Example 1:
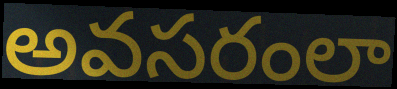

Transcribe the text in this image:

అవసరంలా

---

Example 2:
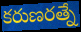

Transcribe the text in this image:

కరుణరత్నే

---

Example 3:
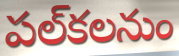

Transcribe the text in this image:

పల్‌కలనుం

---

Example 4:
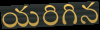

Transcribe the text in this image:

యరిగిన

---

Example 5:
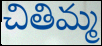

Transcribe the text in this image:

చితిమ్మ